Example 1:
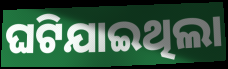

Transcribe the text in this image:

ଘଟିଯାଇଥିଲା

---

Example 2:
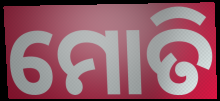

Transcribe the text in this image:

ମୋତି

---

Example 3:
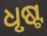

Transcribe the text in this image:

ଧୃଷ୍ଟ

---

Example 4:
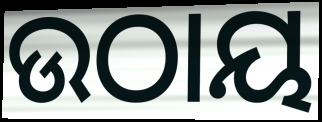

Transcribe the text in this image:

ଉଠାୟ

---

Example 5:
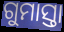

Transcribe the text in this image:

ଗୁମାସ୍ତା